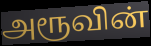
அரூவின்